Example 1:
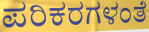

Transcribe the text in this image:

ಪರಿಕರಗಳಂತೆ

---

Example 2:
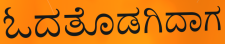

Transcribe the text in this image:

ಓದತೊಡಗಿದಾಗ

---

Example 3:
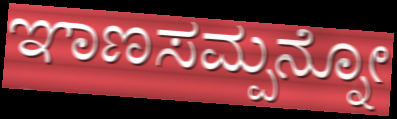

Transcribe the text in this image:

ಞಾಣಸಮ್ಪನ್ನೋ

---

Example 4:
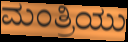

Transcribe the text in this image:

ಮಂತ್ರಿಯು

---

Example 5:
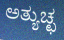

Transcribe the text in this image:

ಅತ್ಯುಚ್ಛ